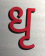
धृ